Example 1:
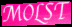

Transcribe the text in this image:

MOLST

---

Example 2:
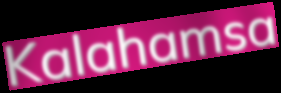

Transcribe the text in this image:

Kalahamsa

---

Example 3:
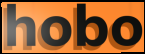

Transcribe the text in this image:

hobo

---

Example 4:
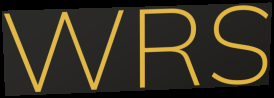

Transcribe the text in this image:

WRS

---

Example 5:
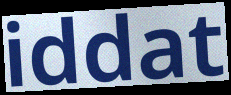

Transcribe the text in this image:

iddat